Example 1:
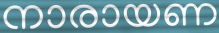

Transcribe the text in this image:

നാരായണ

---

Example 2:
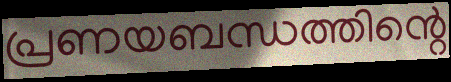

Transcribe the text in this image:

പ്രണയബന്ധത്തിന്റെ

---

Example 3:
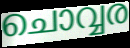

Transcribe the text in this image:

ചൊവ്വര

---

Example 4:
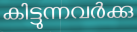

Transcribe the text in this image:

കിട്ടുന്നവർക്കു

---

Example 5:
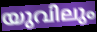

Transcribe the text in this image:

യുവിലും